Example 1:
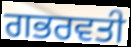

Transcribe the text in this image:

ਗਭਰਵਤੀ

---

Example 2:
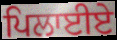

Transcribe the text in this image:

ਪਿਲਾਈਏ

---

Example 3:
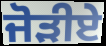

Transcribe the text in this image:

ਜੋੜੀਏ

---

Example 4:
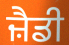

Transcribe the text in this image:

ਜ਼ੈਡੀ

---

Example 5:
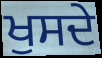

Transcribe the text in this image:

ਖੁਸਦੇ